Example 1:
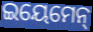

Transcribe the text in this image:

ଇୟେମେନ୍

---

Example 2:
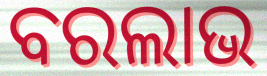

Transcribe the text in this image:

ବରଲାଭ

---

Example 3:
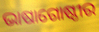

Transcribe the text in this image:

ଭାଷାଗୋଷ୍ଠୀର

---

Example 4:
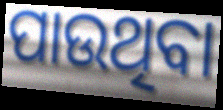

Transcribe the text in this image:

ପାଉଥିବା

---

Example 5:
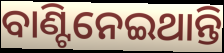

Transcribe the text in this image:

ବାଣ୍ଟିନେଇଥାନ୍ତି